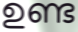
ഉണ്ട